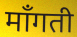
माँगती